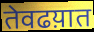
तेवढय़ात